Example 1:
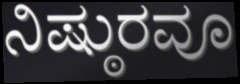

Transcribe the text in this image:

ನಿಷ್ಠುರವೂ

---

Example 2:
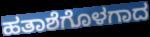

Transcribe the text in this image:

ಹತಾಶೆಗೊಳಗಾದ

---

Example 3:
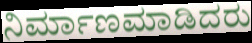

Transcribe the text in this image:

ನಿರ್ಮಾಣಮಾಡಿದರು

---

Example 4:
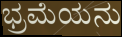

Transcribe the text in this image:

ಭ್ರಮೆಯನು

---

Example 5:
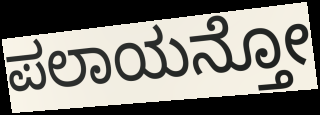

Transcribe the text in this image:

ಪಲಾಯನ್ತೋ